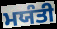
ਮਯੰਤੀ